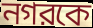
নগরকে